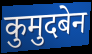
कुमुदबेन